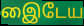
இைடேய